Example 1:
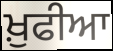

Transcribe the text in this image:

ਖ਼ੁਫੀਆ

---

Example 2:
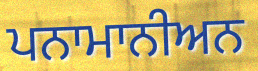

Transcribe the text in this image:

ਪਨਾਮਾਨੀਅਨ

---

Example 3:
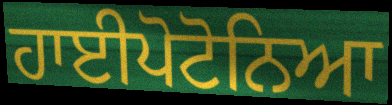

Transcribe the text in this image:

ਹਾਈਪੋਟੋਨਿਆ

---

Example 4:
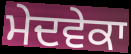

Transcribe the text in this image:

ਮੇਦਵੇਕਾ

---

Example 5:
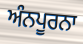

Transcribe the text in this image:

ਅੰਨਪੂਰਨਾ